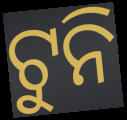
ଟୁନି